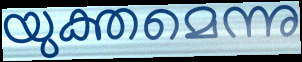
യുക്തമെന്നു